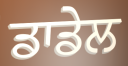
ਡਾਡੇਲ